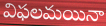
విఫలమయినా